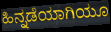
ಹಿನ್ನಡೆಯಾಗಿಯೂ